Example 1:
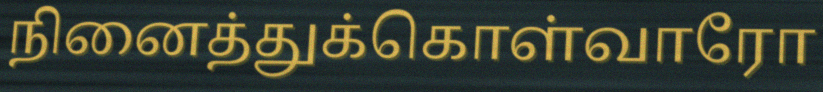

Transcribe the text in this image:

நினைத்துக்கொள்வாரோ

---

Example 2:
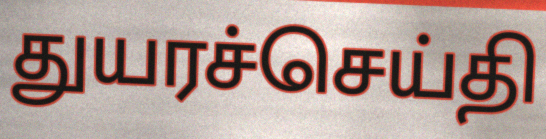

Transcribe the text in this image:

துயரச்செய்தி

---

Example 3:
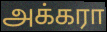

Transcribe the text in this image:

அக்கரா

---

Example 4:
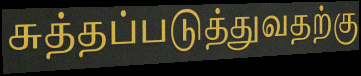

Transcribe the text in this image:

சுத்தப்படுத்துவதற்கு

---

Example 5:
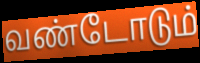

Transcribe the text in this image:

வண்டோடும்